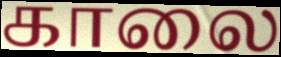
காலை